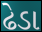
ઢેડા